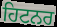
ਹਿਟਨਰ